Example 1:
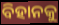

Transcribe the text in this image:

ବିହାନକୁ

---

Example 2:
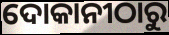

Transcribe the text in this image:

ଦୋକାନୀଠାରୁ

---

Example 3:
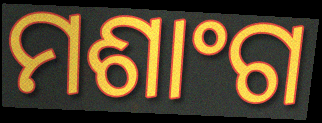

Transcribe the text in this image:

ମଶାଂଗ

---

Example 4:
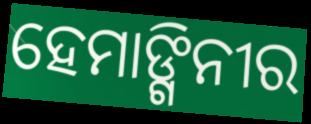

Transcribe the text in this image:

ହେମାଙ୍ଗିନୀର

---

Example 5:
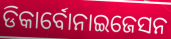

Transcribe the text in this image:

ଡିକାର୍ବୋନାଇଜେସନ